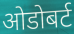
ओडोबर्ट